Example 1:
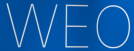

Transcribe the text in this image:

WEO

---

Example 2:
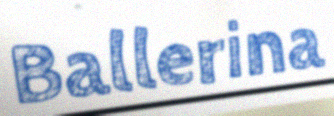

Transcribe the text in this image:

Ballerina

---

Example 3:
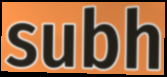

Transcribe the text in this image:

subh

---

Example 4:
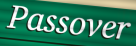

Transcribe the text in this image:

Passover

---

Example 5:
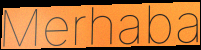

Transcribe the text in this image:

Merhaba